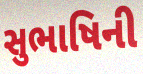
સુભાષિની